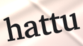
hattu